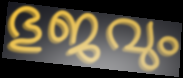
ഭുജവും